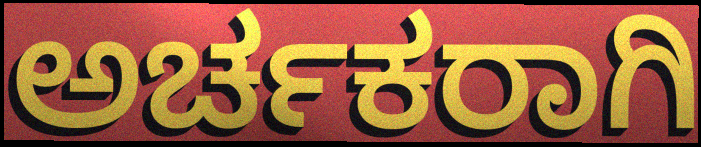
ಅರ್ಚಕರಾಗಿ